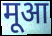
मूआ